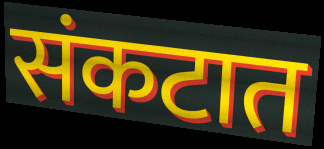
संकटात